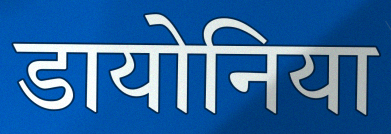
डायोनिया